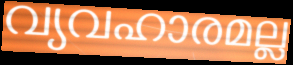
വ്യവഹാരമല്ല